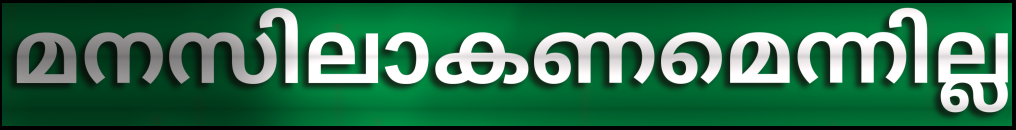
മനസിലാകണമെന്നില്ല